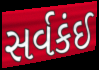
સર્વકંઈ